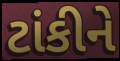
ટાંકીને